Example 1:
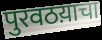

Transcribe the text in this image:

पुरवठय़ाचा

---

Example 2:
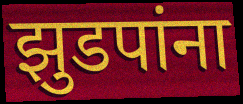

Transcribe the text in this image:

झुडपांना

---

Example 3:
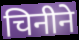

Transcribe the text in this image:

चिनीने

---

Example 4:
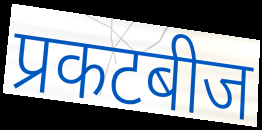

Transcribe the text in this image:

प्रकटबीज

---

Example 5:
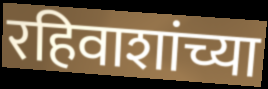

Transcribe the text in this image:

रहिवाशांच्या